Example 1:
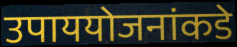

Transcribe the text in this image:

उपाययोजनांकडे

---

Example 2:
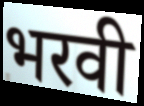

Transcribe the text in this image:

भरवी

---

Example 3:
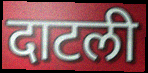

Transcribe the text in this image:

दाटली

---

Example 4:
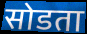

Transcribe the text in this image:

सोडता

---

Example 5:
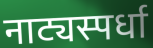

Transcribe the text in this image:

नाट्यस्पर्धा